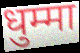
धुम्मा